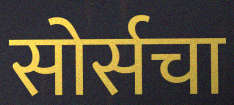
सोर्सचा